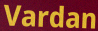
Vardan